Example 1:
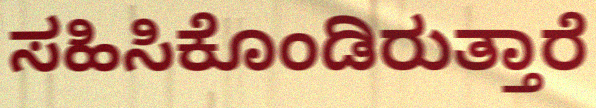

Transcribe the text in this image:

ಸಹಿಸಿಕೊಂಡಿರುತ್ತಾರೆ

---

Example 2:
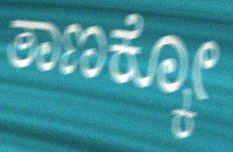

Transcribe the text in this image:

ತಾಣಕ್ಕೋ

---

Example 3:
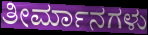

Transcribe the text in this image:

ತೀರ್ಮಾನಗಳು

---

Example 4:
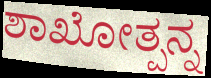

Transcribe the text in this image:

ಶಾಖೋತ್ಪನ್ನ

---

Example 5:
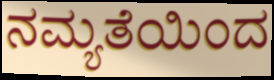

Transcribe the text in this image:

ನಮ್ಯತೆಯಿಂದ